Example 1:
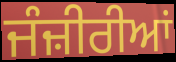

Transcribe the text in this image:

ਜੰਜ਼ੀਰੀਆਂ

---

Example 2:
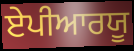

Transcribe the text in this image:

ਏਪੀਆਰਯੂ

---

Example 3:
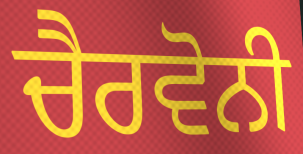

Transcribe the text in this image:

ਚੈਰਵੋਨੀ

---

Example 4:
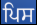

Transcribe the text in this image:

ਪਿਸ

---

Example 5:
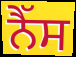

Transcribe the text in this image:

ਨੈੱਸ